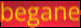
begane